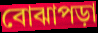
বোঝাপড়া